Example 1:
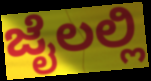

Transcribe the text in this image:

ಜೈಲಲ್ಲಿ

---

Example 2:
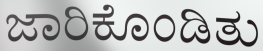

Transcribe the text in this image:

ಜಾರಿಕೊಂಡಿತು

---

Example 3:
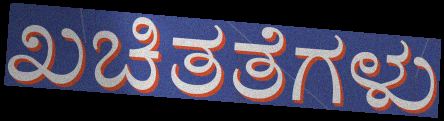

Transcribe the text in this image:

ಖಚಿತತೆಗಳು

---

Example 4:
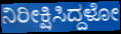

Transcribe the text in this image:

ನಿರೀಕ್ಷಿಸಿದ್ದಳೋ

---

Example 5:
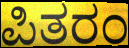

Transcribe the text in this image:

ಪಿತರಂ